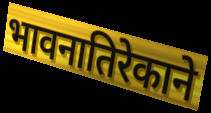
भावनातिरेकाने